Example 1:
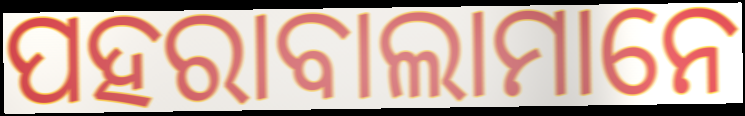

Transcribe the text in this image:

ପହରାବାଲାମାନେ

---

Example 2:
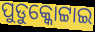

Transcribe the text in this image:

ପୁଡୁକ୍କୋଟ୍ଟାଇ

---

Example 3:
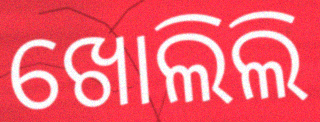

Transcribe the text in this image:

ଖୋଲିଲି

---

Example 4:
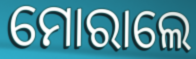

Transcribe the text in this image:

ମୋରାଲେ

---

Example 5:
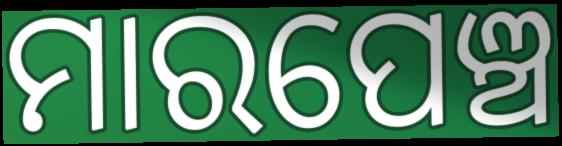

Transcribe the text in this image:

ମାରପେଞ୍ଚ